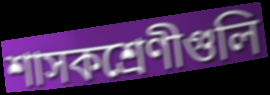
শাসকশ্রেণীগুলি